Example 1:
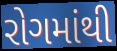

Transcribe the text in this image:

રોગમાંથી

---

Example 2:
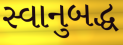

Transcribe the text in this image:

સ્વાનુબદ્ધ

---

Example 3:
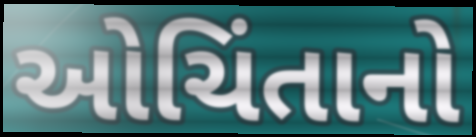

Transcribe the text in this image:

ઓચિંતાનો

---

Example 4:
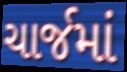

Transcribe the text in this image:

ચાર્જમાં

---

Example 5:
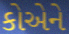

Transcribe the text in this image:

કોએને